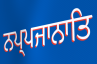
ਨਪ੍ਪਜਾਨਾਤਿ